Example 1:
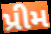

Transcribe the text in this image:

પ્રીમ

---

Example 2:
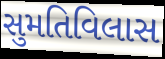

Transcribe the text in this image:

સુમતિવિલાસ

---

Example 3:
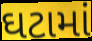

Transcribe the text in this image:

ઘટામાં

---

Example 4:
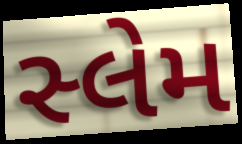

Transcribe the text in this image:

સ્લેમ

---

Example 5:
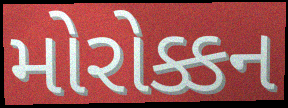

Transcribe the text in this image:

મોરોક્કન